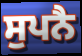
ਸੁਪਨੈ